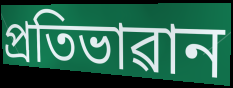
প্ৰতিভাৱান